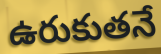
ఉరుకుతనే